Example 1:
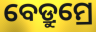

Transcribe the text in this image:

ବେଡ୍ରୁମ୍ରେ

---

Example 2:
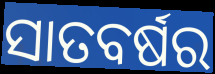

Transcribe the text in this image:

ସାତବର୍ଷର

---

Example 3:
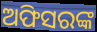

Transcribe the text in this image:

ଅଫିସରଙ୍କ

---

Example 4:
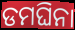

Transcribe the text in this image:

ଡମଘିନା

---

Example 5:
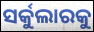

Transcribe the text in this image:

ସର୍କୁଲାରକୁ